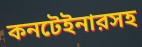
কনটেইনারসহ